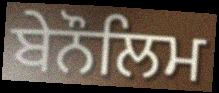
ਬੇਨੌਲਿਮ